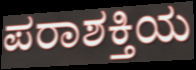
ಪರಾಶಕ್ತಿಯ